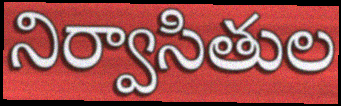
నిర్వాసితుల